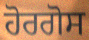
ਹੋਰਗੋਸ